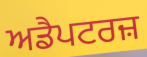
ਅਡੈਪਟਰਜ਼